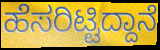
ಹೆಸರಿಟ್ಟಿದ್ದಾನೆ